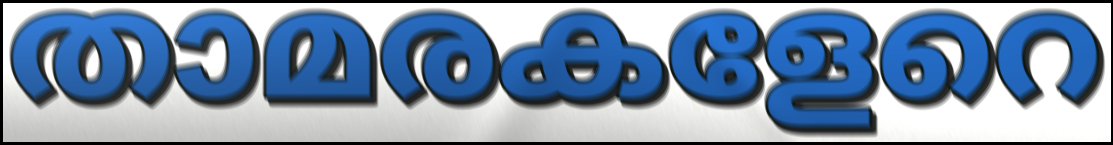
താമരകളേറെ